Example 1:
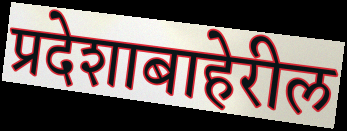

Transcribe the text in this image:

प्रदेशाबाहेरील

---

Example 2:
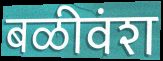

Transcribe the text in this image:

बळीवंश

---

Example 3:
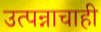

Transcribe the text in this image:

उत्पन्नाचाही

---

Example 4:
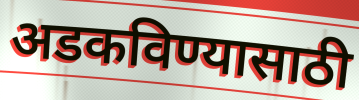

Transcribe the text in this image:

अडकविण्यासाठी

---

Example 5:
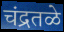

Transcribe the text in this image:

चंद्रतळे